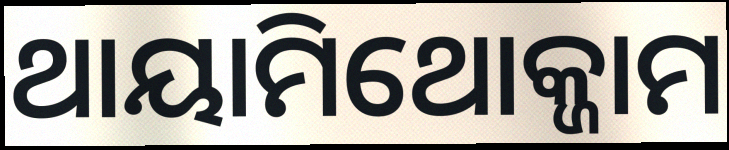
ଥାୟାମିଥୋକ୍ଜାମ